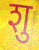
शु